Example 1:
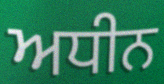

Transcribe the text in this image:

ਅਧੀਨ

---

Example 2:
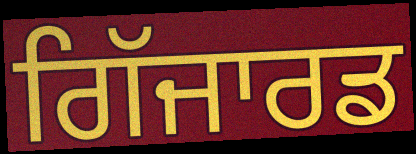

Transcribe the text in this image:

ਗਿੱਜਾਰਡ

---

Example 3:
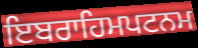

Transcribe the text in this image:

ਇਬਰਾਹਿਮਪਟਨਮ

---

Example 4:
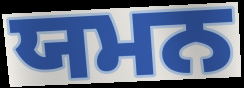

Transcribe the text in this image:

ਯਮਨ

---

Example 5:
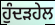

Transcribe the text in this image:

ਹੁੰਦੜਹੇਲ